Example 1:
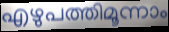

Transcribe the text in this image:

എഴുപത്തിമൂന്നാം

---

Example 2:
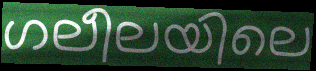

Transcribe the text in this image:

ഗലീലയിലെ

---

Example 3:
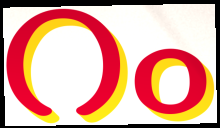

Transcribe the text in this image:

റം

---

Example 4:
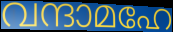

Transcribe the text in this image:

വന്ദാമഹേ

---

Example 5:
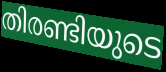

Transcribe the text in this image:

തിരണ്ടിയുടെ